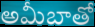
అమీబాతో